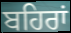
ਬਹਿਰਾਂ